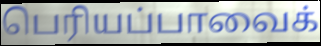
பெரியப்பாவைக்